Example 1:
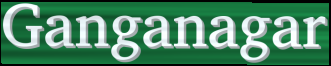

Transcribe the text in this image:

Ganganagar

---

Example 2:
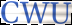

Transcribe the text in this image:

CWU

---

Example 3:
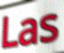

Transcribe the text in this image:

Las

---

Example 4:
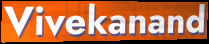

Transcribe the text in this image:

Vivekanand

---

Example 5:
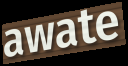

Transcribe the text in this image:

awate